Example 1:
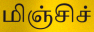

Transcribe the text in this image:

மிஞ்சிச்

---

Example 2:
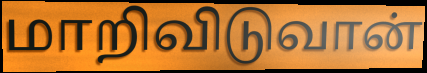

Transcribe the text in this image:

மாறிவிடுவான்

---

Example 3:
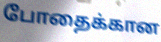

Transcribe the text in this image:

போதைக்கான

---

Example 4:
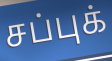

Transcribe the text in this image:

சப்புக்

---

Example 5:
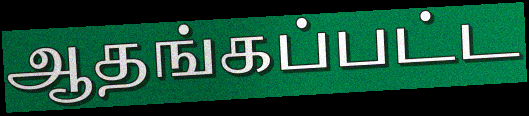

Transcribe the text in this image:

ஆதங்கப்பட்ட